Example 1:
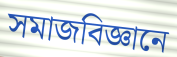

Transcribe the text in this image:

সমাজবিজ্ঞানে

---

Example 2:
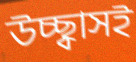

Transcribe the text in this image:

উচ্ছ্বাসই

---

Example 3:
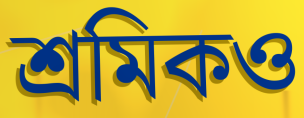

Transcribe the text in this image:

শ্রমিকও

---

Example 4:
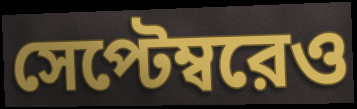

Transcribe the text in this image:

সেপ্টেম্বরেও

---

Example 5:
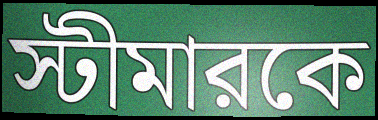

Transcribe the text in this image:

স্টীমারকে